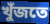
খুঁজতে